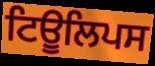
ਟਿਊਲਿਪਸ